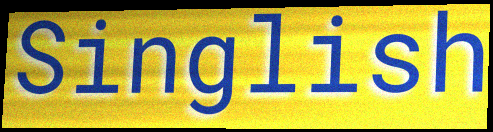
Singlish